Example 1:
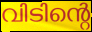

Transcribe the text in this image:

വിടിന്റെ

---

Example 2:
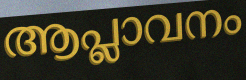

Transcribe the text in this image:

ആപ്ലാവനം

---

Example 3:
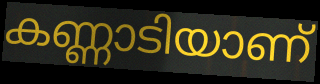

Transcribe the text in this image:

കണ്ണാടിയാണ്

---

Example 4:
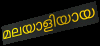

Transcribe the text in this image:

മലയാളിയായ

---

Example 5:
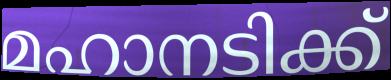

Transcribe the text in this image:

മഹാനടിക്ക്